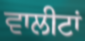
ਵਾਲੀਟਾਂ